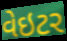
વેઇટર